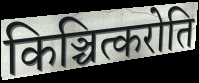
किञ्चित्करोति